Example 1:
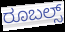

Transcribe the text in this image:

ರೂಬಲ್ಸ್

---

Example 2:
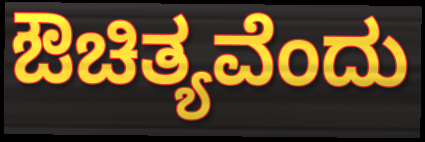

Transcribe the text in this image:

ಔಚಿತ್ಯವೆಂದು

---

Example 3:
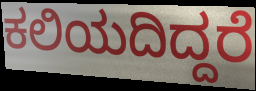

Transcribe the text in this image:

ಕಲಿಯದಿದ್ದರೆ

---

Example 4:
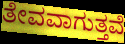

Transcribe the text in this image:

ತೇವವಾಗುತ್ತವೆ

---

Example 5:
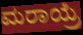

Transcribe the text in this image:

ಮರಾಯ್ರೆ